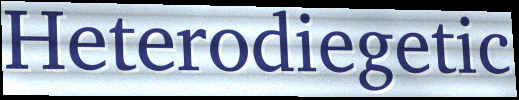
Heterodiegetic